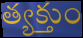
త్యక్తుం